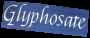
Glyphosate